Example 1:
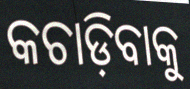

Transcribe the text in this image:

କଚାଡ଼ିବାକୁ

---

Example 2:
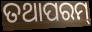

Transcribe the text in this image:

ତଥାପରମ୍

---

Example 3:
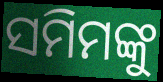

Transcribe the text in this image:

ସମିମଙ୍କୁ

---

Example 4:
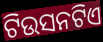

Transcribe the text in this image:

ଟିଉସନଟିଏ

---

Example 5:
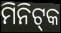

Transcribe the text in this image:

ମିନିଟ୍‌କ